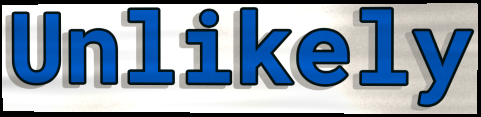
Unlikely